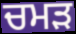
ਚਮੜ